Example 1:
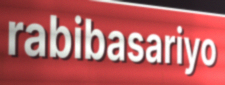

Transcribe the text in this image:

rabibasariyo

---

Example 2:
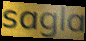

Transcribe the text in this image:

sagla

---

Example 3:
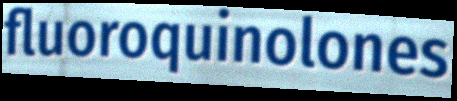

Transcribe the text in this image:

fluoroquinolones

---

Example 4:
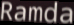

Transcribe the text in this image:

Ramda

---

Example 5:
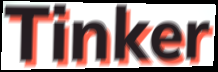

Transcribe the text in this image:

Tinker